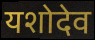
यशोदेव